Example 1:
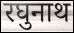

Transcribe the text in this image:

रघुनाथ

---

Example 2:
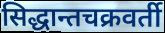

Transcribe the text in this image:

सिद्धान्तचक्रवर्ती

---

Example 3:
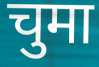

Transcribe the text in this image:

चुमा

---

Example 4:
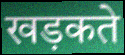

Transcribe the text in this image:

खड़कते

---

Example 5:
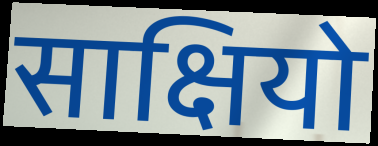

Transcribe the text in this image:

साक्षियो